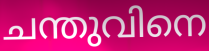
ചന്തുവിനെ